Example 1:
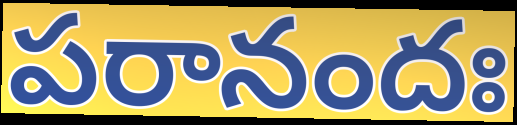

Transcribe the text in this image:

పరానందః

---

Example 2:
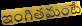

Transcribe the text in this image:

ఇంగితమంటే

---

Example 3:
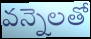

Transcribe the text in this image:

వన్నెలతో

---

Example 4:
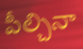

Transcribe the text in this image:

పీల్చినా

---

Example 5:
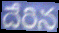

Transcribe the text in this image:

దేరిన